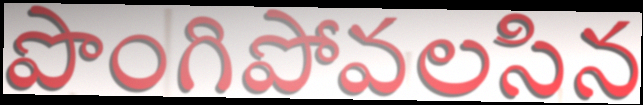
పొంగిపోవలసిన